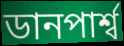
ডানপার্শ্ব